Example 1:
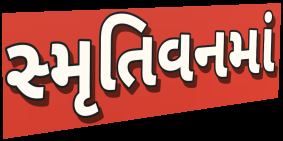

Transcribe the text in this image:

સ્મૃતિવનમાં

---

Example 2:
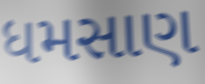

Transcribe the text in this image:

ધમસાણ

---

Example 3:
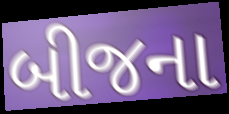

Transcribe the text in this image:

બીજના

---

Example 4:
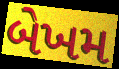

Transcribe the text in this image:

બેખમ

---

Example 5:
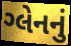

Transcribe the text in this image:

ગ્લેનનું